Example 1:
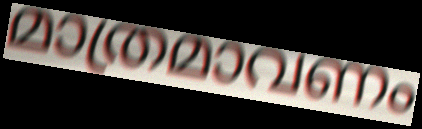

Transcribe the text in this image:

മാത്രമാവണം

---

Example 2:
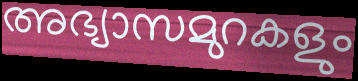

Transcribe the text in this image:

അഭ്യാസമുറകളും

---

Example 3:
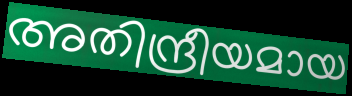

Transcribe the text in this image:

അതിന്ദ്രീയമായ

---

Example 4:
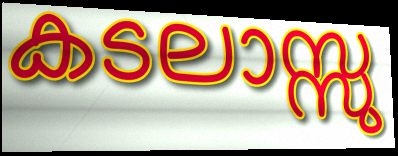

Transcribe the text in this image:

കടലാസ്സു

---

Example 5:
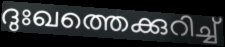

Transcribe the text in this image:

ദുഃഖത്തെക്കുറിച്ച്